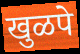
खुळपे